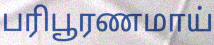
பரிபூரணமாய்